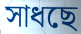
সাধছে